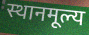
स्थानमूल्य